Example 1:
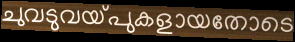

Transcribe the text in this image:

ചുവടുവയ്‌പുകളായതോടെ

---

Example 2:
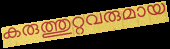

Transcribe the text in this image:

കരുത്തുറ്റവരുമായ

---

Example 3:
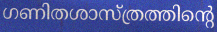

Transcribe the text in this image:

ഗണിതശാസ്ത്രത്തിന്റെ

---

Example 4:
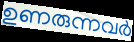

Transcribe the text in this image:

ഉണരുന്നവർ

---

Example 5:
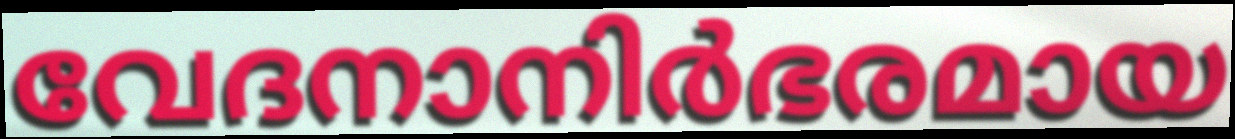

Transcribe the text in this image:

വേദനാനിർഭരമായ